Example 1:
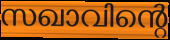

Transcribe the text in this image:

സഖാവിന്റെ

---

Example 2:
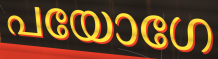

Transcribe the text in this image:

പയോഗേ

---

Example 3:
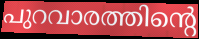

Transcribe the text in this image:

പുറവാരത്തിന്റെ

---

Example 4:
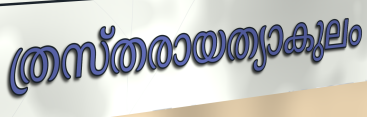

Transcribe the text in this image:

ത്രസ്തരായത്യാകുലം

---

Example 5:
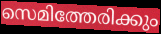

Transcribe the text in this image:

സെമിത്തേരിക്കും